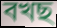
বখছ